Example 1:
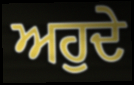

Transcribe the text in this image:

ਅਹੁਦੇ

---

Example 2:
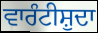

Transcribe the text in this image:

ਵਾਰੰਟੀਸ਼ੁਦਾ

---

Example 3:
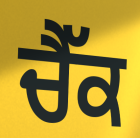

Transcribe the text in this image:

ਚੈੱਕ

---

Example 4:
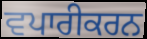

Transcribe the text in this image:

ਵਪਾਰੀਕਰਨ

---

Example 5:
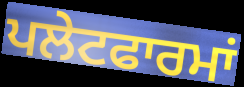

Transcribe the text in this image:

ਪਲੇਟਫਾਰਮਾਂ